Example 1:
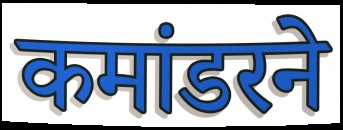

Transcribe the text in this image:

कमांडरने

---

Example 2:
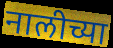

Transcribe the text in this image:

नालीच्या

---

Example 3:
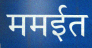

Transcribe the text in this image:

ममईत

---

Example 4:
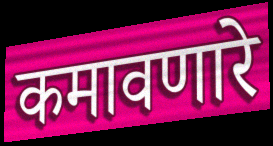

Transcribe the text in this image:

कमावणारे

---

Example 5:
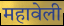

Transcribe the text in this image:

महावेली